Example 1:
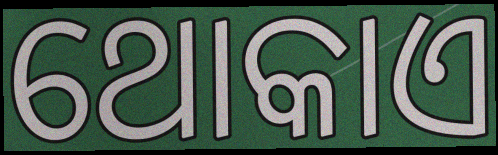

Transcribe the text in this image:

ଥୋକାଏ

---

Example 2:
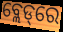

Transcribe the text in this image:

ବ୍ଲେଡ୍‌ରେ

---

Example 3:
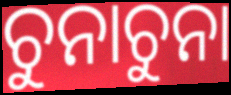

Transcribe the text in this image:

ଚୁନାଚୁନା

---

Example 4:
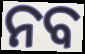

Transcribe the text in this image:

ନବ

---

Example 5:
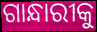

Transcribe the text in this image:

ଗାନ୍ଧାରୀକୁ